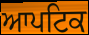
ਆਪਟਿਕ